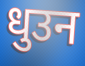
धुउन